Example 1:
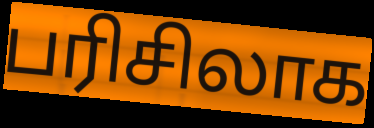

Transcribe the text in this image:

பரிசிலாக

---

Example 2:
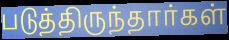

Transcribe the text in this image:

படுத்திருந்தார்கள்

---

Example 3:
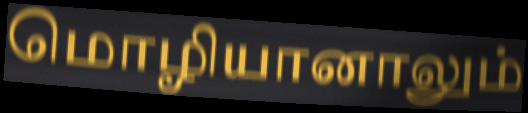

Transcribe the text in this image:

மொழியானாலும்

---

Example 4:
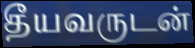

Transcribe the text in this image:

தீயவருடன்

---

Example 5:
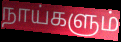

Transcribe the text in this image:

நாய்களும்